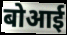
बोआई